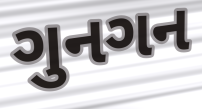
ગુનગન